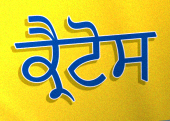
ਕ੍ਰੈਟੋਸ